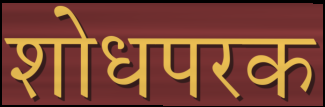
शोधपरक